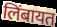
लिंबायत